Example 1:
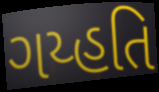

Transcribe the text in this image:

ગય્હતિ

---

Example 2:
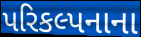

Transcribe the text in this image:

પરિકલ્પનાના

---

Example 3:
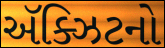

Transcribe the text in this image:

ઍક્ઝિટનો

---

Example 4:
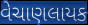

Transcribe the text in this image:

વેચાણલાયક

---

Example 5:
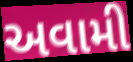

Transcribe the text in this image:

અવામી